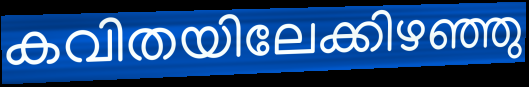
കവിതയിലേക്കിഴഞ്ഞു